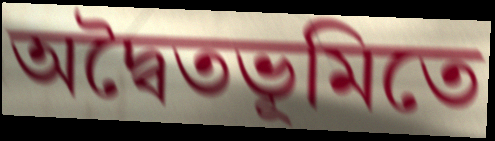
অদ্বৈতভূমিতে